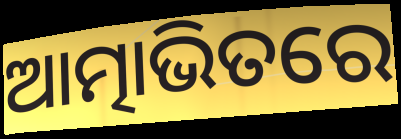
ଆତ୍ମାଭିତରେ